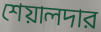
শেয়ালদার